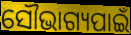
ସୌଭାଗ୍ୟପାଇଁ